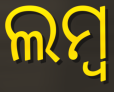
ଲମ୍ୱ